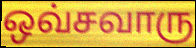
ஒவ்சவாரு